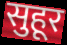
सुहूर